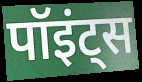
पॉइंट्स